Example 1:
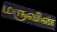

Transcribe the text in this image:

மருவின்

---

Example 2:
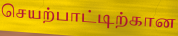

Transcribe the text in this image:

செயற்பாட்டிற்கான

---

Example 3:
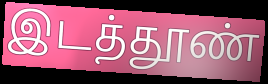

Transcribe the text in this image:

இடத்தூண்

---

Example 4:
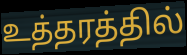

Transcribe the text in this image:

உத்தரத்தில்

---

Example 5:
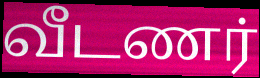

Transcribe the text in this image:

வீடணர்